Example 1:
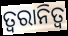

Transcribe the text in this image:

ତ୍ୱରାନିତ୍ଵ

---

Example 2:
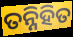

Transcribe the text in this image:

ତନ୍ନିହିତ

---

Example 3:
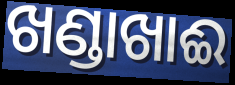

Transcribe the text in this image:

ଖଣ୍ଡାଖାଈ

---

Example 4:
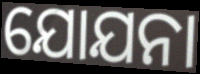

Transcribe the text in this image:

ଯୋଯନା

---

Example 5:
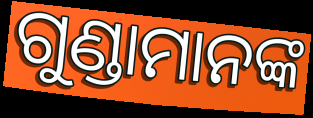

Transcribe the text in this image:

ଗୁଣ୍ଡାମାନଙ୍କ